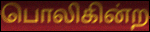
பொலிகின்ற